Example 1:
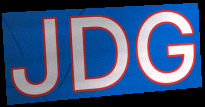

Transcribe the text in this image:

JDG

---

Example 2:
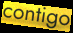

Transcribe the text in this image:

contigo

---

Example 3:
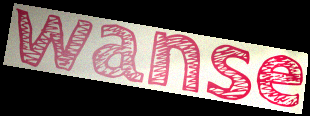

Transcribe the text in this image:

wanse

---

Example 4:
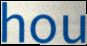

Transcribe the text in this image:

hou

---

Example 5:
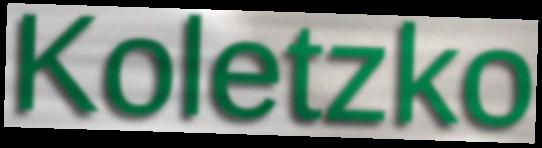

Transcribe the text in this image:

Koletzko